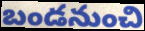
బండనుంచి